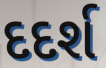
દદર્શ